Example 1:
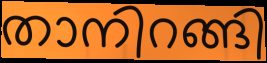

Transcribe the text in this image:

താനിറങ്ങി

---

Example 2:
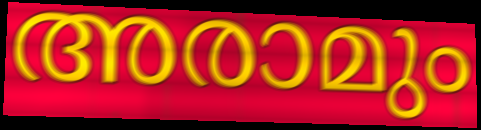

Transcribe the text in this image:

അരാമും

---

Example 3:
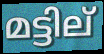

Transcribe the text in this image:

മട്ടില്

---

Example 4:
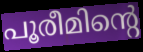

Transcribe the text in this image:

പൂരീമിന്റെ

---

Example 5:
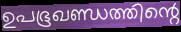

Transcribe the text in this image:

ഉപഭൂഖണ്ഡത്തിന്റെ